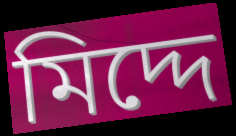
মিদ্দে